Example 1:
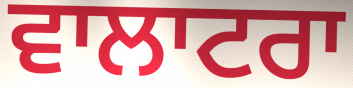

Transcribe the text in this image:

ਵਾਲਾਟਰਾ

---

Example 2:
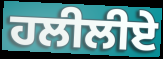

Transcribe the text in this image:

ਹਲੀਲੀਏ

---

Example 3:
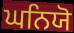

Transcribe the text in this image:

ਘਨਿਯੋ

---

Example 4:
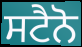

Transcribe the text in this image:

ਸਟੈਨੋ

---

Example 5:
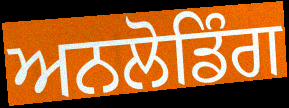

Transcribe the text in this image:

ਅਨਲੋਡਿੰਗ